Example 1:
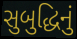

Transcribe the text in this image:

સુબુદ્ધિનું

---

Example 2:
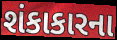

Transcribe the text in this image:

શંકાકારના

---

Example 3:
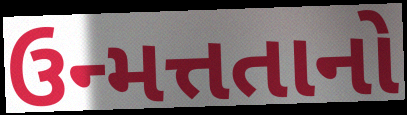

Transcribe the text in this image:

ઉન્મત્તતાનો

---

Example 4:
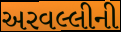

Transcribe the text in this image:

અરવલ્લીની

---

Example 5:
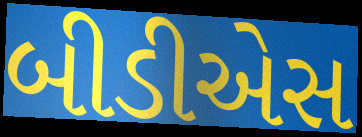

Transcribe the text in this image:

બીડીએસ